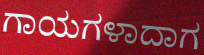
ಗಾಯಗಳಾದಾಗ